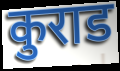
कुराड